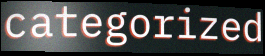
categorized